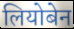
लियोबेन